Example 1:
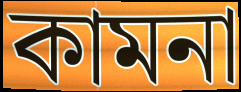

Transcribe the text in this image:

কামনা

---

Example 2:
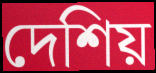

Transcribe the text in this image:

দেশিয়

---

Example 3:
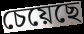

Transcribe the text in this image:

চেয়েছে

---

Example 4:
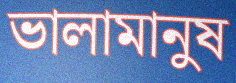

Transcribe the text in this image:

ভালামানুষ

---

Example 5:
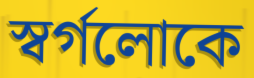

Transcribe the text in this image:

স্বর্গলোকে